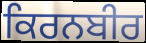
ਕਿਰਨਬੀਰ